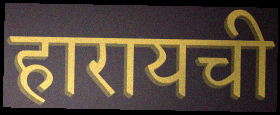
हारायची